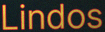
Lindos